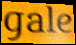
gale